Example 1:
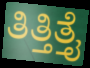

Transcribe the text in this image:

ತಿತ್ತಿತ್ತೈ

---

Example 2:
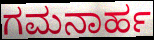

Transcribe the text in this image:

ಗಮನಾರ್ಹ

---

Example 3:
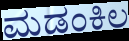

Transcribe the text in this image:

ಮಡಂಕಿಲ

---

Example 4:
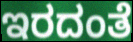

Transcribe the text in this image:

ಇರದಂತೆ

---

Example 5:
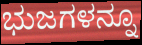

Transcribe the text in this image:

ಭುಜಗಳನ್ನೂ